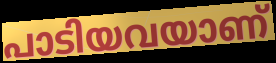
പാടിയവയാണ്